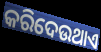
କରିଦେଉଥାଏ